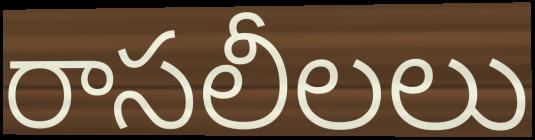
రాసలీలలు